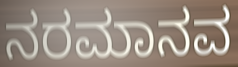
ನರಮಾನವ